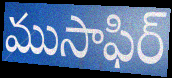
ముసాఫిర్